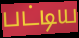
பட்டிய